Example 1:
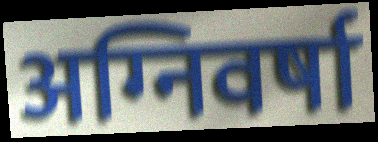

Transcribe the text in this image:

अग्निवर्षा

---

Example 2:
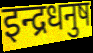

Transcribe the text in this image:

इन्द्रधनुष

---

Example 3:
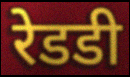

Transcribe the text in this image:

रेडडी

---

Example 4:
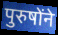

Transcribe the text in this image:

पुरुषोंने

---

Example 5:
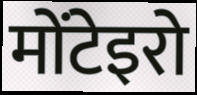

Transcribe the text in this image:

मोंटेइरो